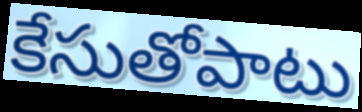
కేసుతోపాటు